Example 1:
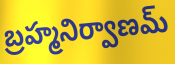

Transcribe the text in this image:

బ్రహ్మనిర్వాణమ్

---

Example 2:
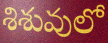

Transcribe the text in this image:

శిశువులో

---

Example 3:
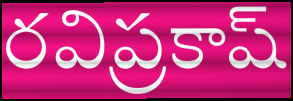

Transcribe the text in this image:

రవిప్రకాష్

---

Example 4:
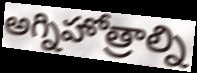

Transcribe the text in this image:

అగ్నిహోత్రాల్ని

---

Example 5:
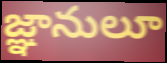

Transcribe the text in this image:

జ్ఞానులూ